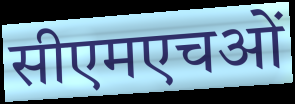
सीएमएचओं